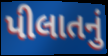
પીલાતનું